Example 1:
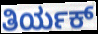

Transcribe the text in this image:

ತಿರ್ಯಕ್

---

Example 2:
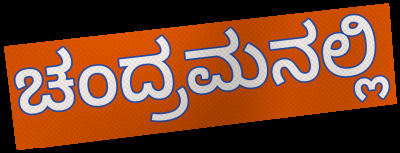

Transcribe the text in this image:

ಚಂದ್ರಮನಲ್ಲಿ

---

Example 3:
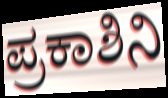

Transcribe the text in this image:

ಪ್ರಕಾಶಿನಿ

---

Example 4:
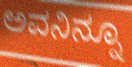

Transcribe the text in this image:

ಅವನಿನ್ನೂ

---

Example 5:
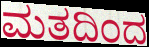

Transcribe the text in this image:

ಮತದಿಂದ